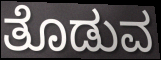
ತೊಡುವ